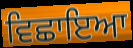
ਵਿਛਾਇਆ